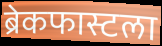
ब्रेकफास्टला